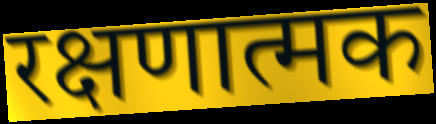
रक्षणात्मक